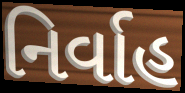
નિર્વાહ